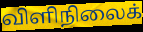
விளிநிலைக்